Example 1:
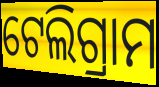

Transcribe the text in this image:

ଟେଲିଗ୍ରାମ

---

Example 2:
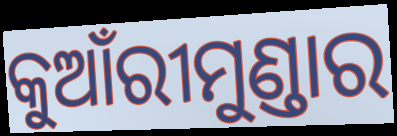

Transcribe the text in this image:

କୁଆଁରୀମୁଣ୍ଡାର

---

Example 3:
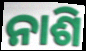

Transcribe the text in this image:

ନାଶି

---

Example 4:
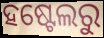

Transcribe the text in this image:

ହଷ୍ଟେଲରୁ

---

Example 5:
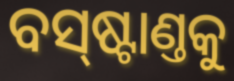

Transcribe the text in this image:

ବସ୍‌ଷ୍ଟାଣ୍ତକୁ